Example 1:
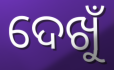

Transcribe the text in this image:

ଦେଖୁଁ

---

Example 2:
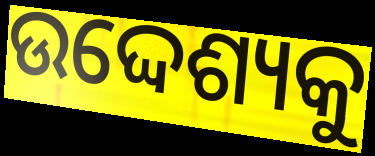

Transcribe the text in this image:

ଉଦ୍ଦେଶ୍ୟକୁ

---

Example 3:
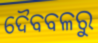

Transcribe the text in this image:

ଦୈବବଳରୁ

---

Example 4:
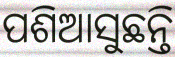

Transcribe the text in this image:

ପଶିଆସୁଛନ୍ତି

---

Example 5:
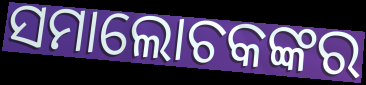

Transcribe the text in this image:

ସମାଲୋଚକଙ୍କର